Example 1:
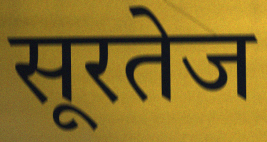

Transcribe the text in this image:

सूरतेज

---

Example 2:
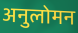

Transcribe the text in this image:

अनुलोमन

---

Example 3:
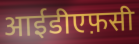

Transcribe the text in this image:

आईडीएफ़सी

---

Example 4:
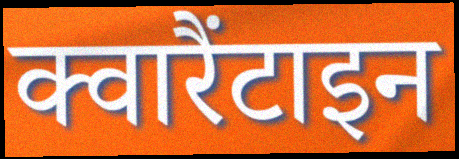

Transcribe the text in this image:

क्वारैंटाइन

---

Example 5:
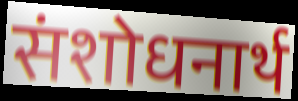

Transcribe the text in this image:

संशोधनार्थ